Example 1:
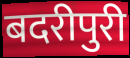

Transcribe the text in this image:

बदरीपुरी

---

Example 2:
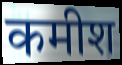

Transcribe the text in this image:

कमीश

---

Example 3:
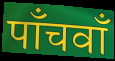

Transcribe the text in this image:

पाँचवाँ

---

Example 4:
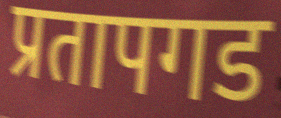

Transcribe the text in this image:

प्रतापगड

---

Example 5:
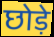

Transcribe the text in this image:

छोड़े